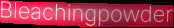
Bleachingpowder